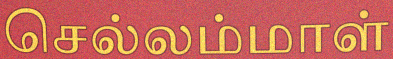
செல்லம்மாள்